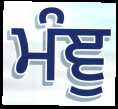
ਮੰਞੁ